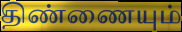
திண்ணையும்